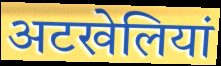
अटखेलियां